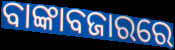
ବାଙ୍କାବଜାରରେ